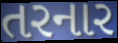
તરનાર